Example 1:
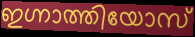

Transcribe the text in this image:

ഇഗ്നാത്തിയോസ്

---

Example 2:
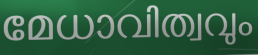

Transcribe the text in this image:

മേധാവിത്വവും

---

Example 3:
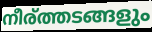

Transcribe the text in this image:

നീര്ത്തടങ്ങളും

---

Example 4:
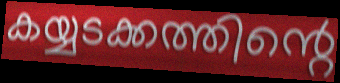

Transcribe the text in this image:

കയ്യടക്കത്തിന്റെ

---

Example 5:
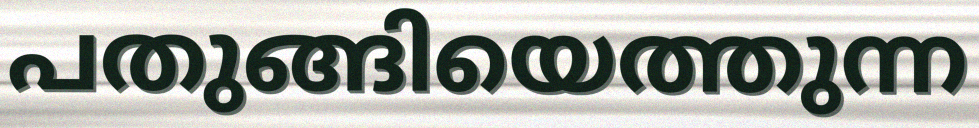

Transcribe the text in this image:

പതുങ്ങിയെത്തുന്ന